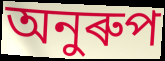
অনুৰুপ